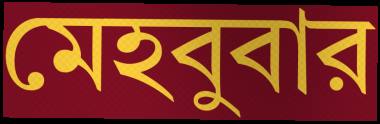
মেহবুবার